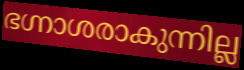
ഭഗ്നാശരാകുന്നില്ല